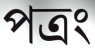
পত্রং